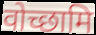
वोच्छामि